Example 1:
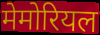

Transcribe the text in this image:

मेमोरियल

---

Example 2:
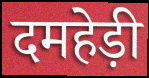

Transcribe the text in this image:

दमहेड़ी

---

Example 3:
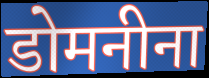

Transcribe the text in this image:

डोमनीना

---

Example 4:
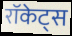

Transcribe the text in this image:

रॉकेट्स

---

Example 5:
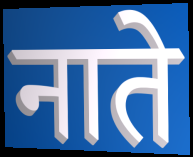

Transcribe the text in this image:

नाते